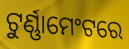
ଟୁର୍ଣ୍ଣାମେଂଟରେ